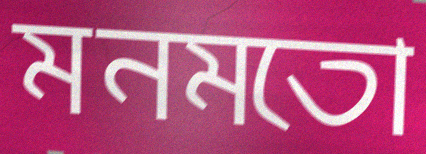
মনমতো